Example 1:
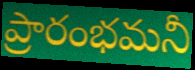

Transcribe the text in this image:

ప్రారంభమనీ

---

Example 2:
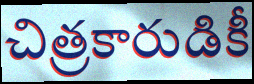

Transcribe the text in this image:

చిత్రకారుడికీ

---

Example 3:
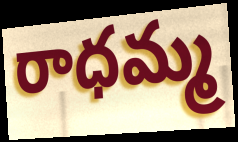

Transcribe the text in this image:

రాధమ్మ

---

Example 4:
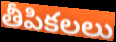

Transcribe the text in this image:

తీపికలలు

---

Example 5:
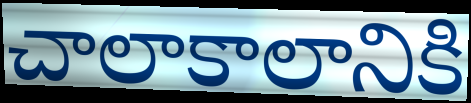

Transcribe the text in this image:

చాలాకాలానికి